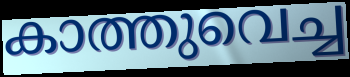
കാത്തുവെച്ച